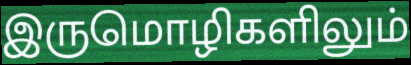
இருமொழிகளிலும்